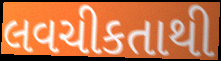
લવચીકતાથી